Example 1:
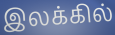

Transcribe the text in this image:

இலக்கில்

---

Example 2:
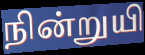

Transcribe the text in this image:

நின்றுயி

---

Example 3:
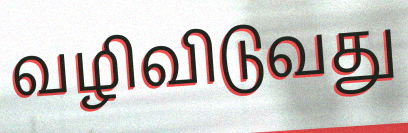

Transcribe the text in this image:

வழிவிடுவது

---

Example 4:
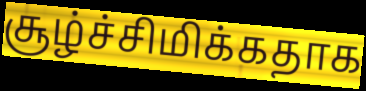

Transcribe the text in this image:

சூழ்ச்சிமிக்கதாக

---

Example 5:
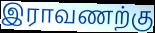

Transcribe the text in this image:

இராவணற்கு